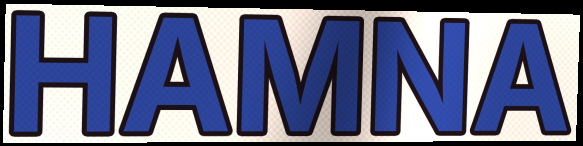
HAMNA